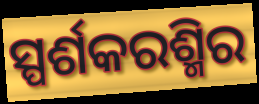
ସ୍ପର୍ଶକରଶ୍ମିର